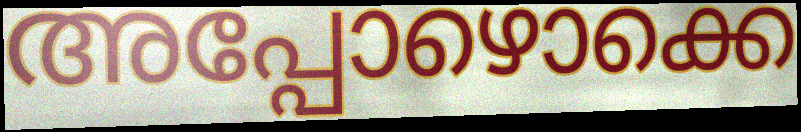
അപ്പോഴൊക്കെ